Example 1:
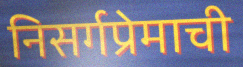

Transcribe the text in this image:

निसर्गप्रेमाची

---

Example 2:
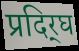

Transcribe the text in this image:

प्रदिर्घ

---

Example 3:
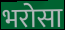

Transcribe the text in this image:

भरोसा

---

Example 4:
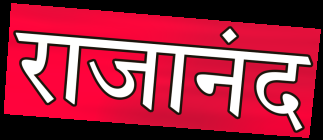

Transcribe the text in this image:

राजानंद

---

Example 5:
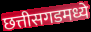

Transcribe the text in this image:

छत्तीसगडमध्ये